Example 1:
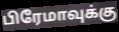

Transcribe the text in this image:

பிரேமாவுக்கு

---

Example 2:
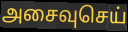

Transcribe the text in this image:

அசைவுசெய்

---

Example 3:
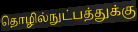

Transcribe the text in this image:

தொழில்நுட்பத்துக்கு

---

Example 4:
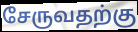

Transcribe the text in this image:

சேருவதற்கு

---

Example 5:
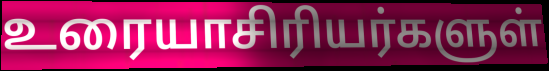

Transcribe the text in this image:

உரையாசிரியர்களுள்